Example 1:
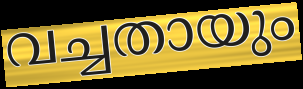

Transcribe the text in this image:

വച്ചതായും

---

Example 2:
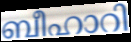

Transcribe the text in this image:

ബീഹാറി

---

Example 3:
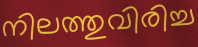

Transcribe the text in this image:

നിലത്തുവിരിച്ച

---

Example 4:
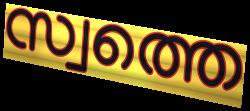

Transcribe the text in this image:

സ്വത്തെ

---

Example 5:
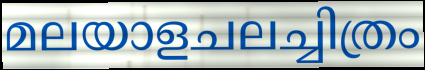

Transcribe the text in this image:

മലയാളചലച്ചിത്രം